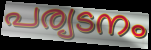
പര്യടനം